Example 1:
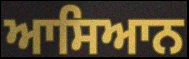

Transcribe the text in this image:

ਆਸਿਆਨ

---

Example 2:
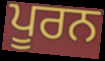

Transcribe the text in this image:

ਪੂਰਨ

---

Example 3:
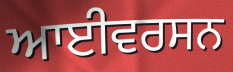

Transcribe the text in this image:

ਆਈਵਰਸਨ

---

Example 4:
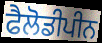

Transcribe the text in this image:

ਫੈਲੋਡੀਪੀਨ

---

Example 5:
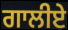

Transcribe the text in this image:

ਗਾਲੀਏ